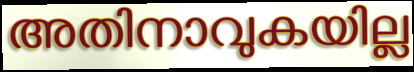
അതിനാവുകയില്ല